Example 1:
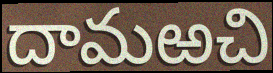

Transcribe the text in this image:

దామఱచి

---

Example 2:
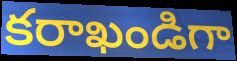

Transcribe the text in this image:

కరాఖండిగా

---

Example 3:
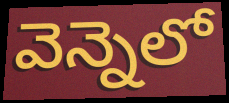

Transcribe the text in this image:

వెన్నెలో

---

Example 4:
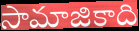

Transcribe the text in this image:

సామాజికాది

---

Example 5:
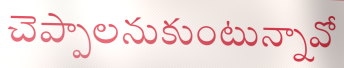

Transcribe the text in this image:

చెప్పాలనుకుంటున్నావో